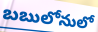
బబులోనులో